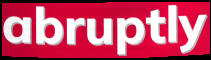
abruptly